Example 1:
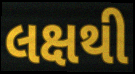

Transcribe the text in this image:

લક્ષથી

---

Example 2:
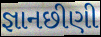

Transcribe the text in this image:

જ્ઞાનછીણી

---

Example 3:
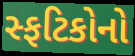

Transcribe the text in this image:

સ્ફટિકોનો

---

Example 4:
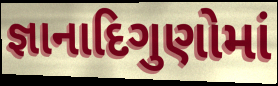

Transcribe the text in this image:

જ્ઞાનાદિગુણોમાં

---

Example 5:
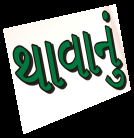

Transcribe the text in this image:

થાવાનું